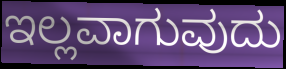
ಇಲ್ಲವಾಗುವುದು